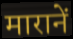
मारानें